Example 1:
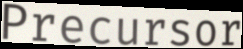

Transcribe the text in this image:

Precursor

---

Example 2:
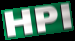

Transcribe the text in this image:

HPI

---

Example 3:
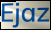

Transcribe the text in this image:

Ejaz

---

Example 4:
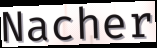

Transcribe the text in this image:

Nacher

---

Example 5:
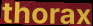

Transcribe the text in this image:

thorax